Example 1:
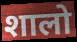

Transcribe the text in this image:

शालो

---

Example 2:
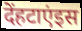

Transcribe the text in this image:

देंहटाएंइस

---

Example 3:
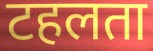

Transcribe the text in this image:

टहलता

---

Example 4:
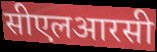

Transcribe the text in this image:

सीएलआरसी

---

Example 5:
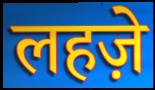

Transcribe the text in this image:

लहज़े